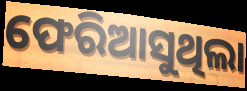
ଫେରିଆସୁଥିଲା